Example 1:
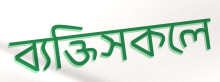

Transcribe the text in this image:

ব্যক্তিসকলে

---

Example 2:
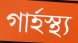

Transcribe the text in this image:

গাৰ্হস্থ্য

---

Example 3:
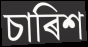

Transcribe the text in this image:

চাৰিশ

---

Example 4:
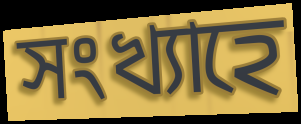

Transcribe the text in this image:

সংখ্যাহে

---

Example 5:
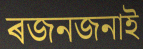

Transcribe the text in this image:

ৰজনজনাই